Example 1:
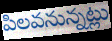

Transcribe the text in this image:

పిలవనున్నట్లు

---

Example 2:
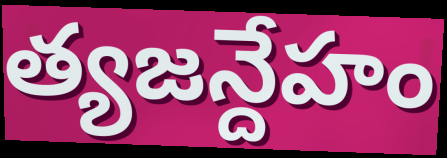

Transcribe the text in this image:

త్యజన్దేహం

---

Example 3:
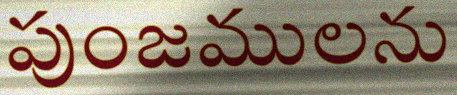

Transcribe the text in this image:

పుంజములను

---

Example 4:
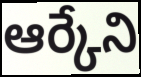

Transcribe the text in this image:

ఆర్కేని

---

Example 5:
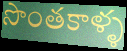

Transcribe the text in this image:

సొంతకాళ్ళ